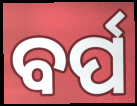
ବର୍ପ